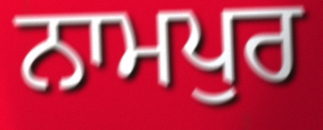
ਨਾਮਪੁਰ